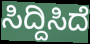
ಸಿದ್ದಿಸಿದೆ